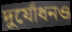
দুর্যোধনও